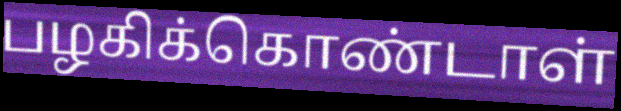
பழகிக்கொண்டாள்